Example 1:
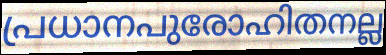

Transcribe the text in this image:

പ്രധാനപുരോഹിതനല്ല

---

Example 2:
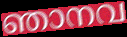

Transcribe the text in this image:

ഞാനവ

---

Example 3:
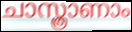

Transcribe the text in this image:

ചാസ്ത്രാണാം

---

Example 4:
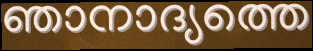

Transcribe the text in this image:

ഞാനാദ്യത്തെ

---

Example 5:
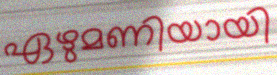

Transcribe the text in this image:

ഏഴുമണിയായി